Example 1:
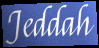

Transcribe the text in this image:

Jeddah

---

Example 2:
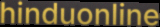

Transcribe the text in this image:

hinduonline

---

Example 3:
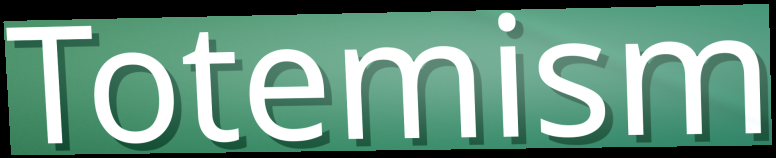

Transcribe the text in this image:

Totemism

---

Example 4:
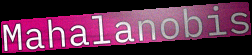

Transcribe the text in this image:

Mahalanobis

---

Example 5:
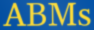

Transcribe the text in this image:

ABMs